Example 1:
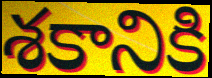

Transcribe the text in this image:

శకానికి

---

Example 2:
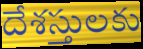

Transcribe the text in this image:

దేశస్తులకు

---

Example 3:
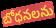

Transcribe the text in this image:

బోధనలను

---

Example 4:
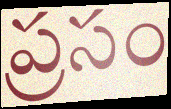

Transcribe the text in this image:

ప్రసం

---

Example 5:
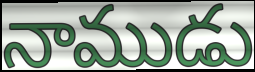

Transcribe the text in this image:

నాముడు